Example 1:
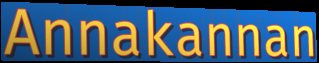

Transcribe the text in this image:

Annakannan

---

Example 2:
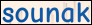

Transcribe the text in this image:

sounak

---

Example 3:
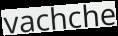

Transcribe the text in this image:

vachche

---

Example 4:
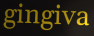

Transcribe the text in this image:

gingiva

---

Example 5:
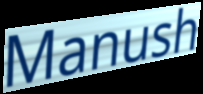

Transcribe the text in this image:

Manush